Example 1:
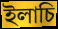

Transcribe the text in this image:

ইলাচি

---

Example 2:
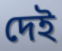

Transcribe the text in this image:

দেই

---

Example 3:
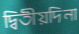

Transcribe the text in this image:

দ্বিতীয়দিনা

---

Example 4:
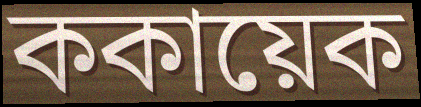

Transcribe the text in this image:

ককায়েক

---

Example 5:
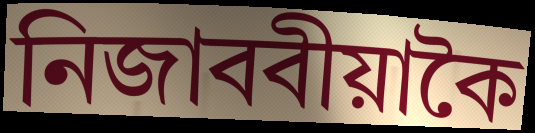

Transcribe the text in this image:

নিজাববীয়াকৈ